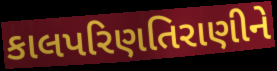
કાલપરિણતિરાણીને